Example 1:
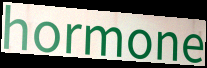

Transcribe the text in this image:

hormone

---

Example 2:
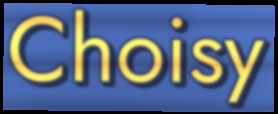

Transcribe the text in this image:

Choisy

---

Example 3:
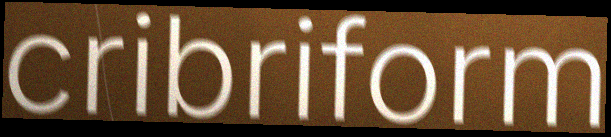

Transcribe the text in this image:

cribriform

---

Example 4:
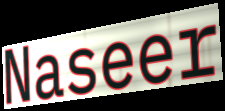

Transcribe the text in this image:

Naseer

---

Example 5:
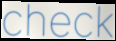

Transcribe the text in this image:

check